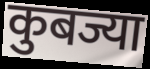
कुबज्या